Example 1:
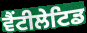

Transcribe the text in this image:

ਵੈਂਟੀਲੇਟਿਡ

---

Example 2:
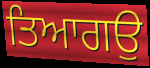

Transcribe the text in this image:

ਤਿਆਗਉ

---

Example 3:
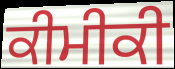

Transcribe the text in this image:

ਕੀਮੀਕੀ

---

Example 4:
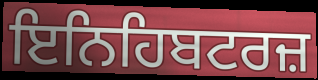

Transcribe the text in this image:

ਇਨਿਹਿਬਟਰਜ਼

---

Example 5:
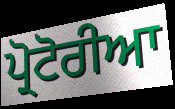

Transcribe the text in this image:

ਪ੍ਰੋਟੋਰੀਆ